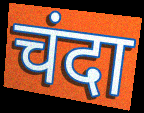
चंदा